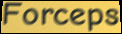
Forceps